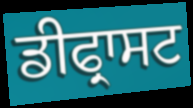
ਡੀਫ੍ਰਾਸਟ